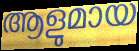
ആളുമായ